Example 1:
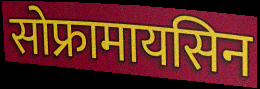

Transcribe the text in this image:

सोफ्रामायसिन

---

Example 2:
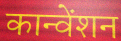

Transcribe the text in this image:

कान्वेंशन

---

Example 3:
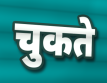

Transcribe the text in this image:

चुकते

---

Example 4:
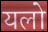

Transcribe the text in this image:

यलो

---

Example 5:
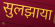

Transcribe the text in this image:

सुलझाया